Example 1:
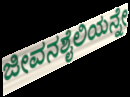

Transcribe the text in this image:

ಜೀವನಶೈಲಿಯನ್ನೇ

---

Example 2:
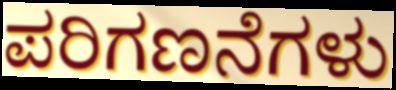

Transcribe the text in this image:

ಪರಿಗಣನೆಗಳು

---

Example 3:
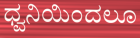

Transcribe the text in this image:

ಧ್ವನಿಯಿಂದಲೂ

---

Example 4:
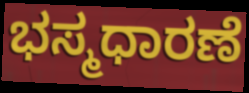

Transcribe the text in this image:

ಭಸ್ಮಧಾರಣೆ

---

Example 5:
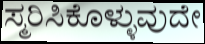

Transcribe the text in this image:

ಸ್ಮರಿಸಿಕೊಳ್ಳುವುದೇ